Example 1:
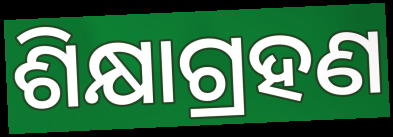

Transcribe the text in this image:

ଶିକ୍ଷାଗ୍ରହଣ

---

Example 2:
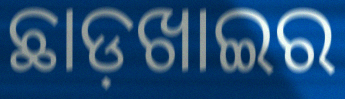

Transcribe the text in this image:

ଛାଡ଼ଖାଇର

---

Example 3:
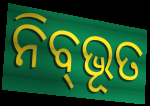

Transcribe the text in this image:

ନିବ୍‌ଭୂତ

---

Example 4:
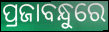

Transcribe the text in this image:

ପ୍ରଜାବନ୍ଧୁରେ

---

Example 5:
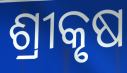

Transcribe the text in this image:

ଶ୍ରୀକୃଷ